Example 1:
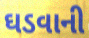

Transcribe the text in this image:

ઘડવાની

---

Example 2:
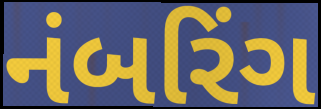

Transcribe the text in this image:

નંબરિંગ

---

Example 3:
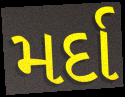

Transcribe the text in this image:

મર્દા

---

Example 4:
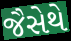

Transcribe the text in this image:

જૈસેથે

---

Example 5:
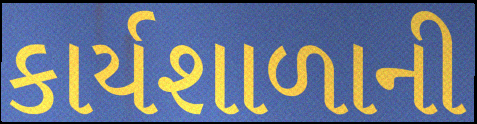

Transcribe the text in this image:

કાર્યશાળાની